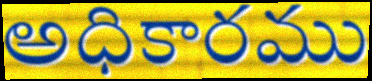
అధికారము